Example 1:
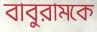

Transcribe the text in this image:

বাবুরামকে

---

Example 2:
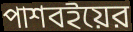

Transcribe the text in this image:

পাশবইয়ের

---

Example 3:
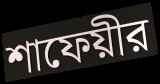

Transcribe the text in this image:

শাফেয়ীর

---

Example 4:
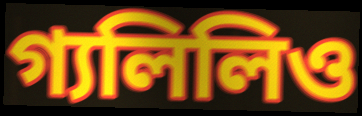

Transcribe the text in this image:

গ্যলিলিও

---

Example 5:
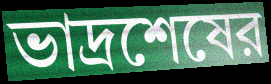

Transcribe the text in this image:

ভাদ্রশেষের